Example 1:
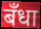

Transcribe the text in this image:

बँधा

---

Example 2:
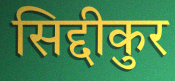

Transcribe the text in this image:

सिद्दीकुर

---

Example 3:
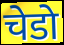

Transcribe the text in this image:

चेडो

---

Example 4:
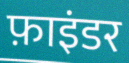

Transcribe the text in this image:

फ़ाइंडर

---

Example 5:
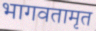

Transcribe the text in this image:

भागवतामृत